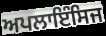
ਅਪਲਾਇੰਸਿਜ